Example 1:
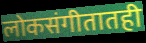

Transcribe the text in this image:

लोकसंगीतातही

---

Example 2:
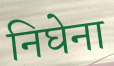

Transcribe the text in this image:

निघेना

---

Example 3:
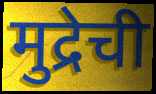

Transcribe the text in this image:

मुद्रेची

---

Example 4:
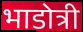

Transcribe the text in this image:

भाडोत्री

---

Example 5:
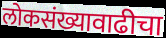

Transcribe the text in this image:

लोकसंख्यावाढीचा